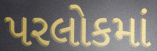
પરલોકમાં